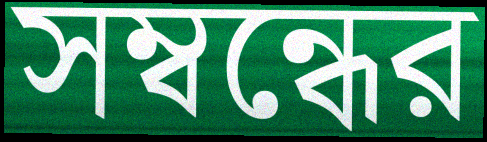
সম্বন্ধের